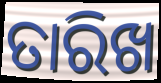
ତାରିଖ